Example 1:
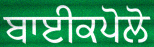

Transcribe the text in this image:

ਬਾਈਕਪੋਲੋ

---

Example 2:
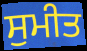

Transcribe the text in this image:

ਸੁਮੀਤ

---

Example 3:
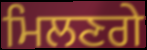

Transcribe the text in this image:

ਮਿਲਣਗੇ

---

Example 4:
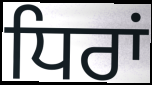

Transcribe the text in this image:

ਧਿਰਾਂ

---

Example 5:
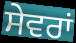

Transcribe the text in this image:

ਸੇਵਰਾਂ